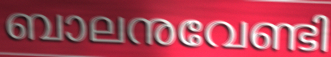
ബാലനുവേണ്ടി